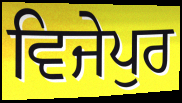
ਵਿਜੇਪੁਰ